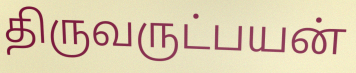
திருவருட்பயன்